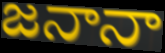
జనానా